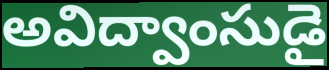
అవిద్వాంసుడై